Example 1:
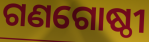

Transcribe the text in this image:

ଗଣଗୋଷ୍ଠୀ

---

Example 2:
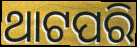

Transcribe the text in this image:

ଥାଟପରି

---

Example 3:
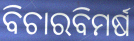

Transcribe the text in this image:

ବିଚାରବିମର୍ଷ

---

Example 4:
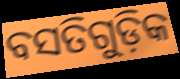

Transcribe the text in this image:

ବସତିଗୁଡ଼ିକ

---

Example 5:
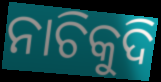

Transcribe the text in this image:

ନାଚିକୁଦି